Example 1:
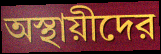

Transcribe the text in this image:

অস্থায়ীদের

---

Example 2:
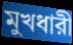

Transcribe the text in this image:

মুখধারী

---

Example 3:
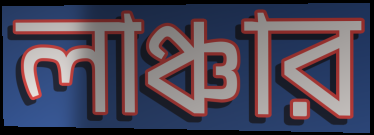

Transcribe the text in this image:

লাঞ্চার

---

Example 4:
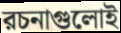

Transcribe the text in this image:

রচনাগুলোই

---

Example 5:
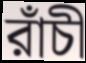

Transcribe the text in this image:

রাঁচী